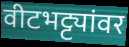
वीटभट्ट्यांवर